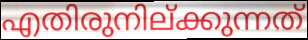
എതിരുനില്ക്കുന്നത്